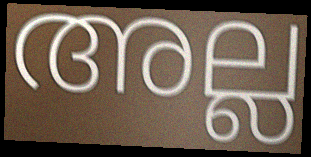
അല്ല